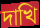
দাখি